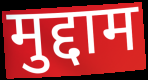
मुद्दाम